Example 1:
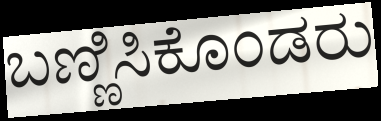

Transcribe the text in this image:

ಬಣ್ಣಿಸಿಕೊಂಡರು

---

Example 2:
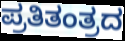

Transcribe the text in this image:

ಪ್ರತಿತಂತ್ರದ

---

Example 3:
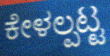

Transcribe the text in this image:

ಕೇಳಲ್ಪಟ್ಟ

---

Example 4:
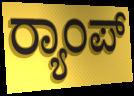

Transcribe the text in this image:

ರ‍್ಯಾಂಪ್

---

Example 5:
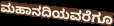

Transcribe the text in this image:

ಮಹಾನದಿಯವರೆಗೂ